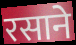
रसाने